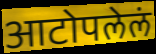
आटोपलेलं